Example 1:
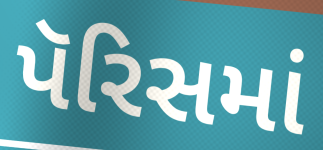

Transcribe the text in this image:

પૅરિસમાં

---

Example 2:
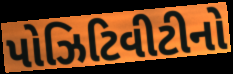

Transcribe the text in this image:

પોઝિટિવીટીનો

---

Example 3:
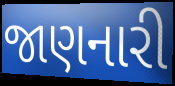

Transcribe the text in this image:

જાણનારી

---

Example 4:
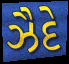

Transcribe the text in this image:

ઝૈદે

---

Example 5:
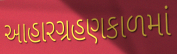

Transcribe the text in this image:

આહારગ્રહણકાળમાં